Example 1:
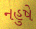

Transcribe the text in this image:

નહુષે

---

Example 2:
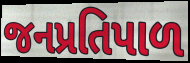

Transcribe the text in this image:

જનપ્રતિપાળ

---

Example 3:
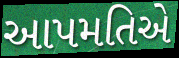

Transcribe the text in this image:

આપમતિએ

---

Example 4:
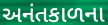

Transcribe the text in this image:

અનંતકાળના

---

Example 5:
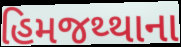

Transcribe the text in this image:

હિમજથ્થાના